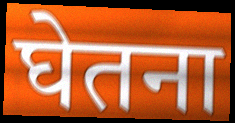
घेतना